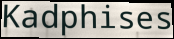
Kadphises